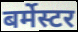
बर्मेस्टर